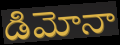
డిమోనా